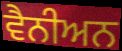
ਵੈਨੀਅਨ